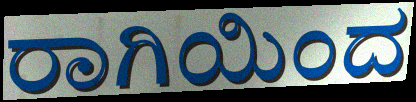
ರಾಗಿಯಿಂದ